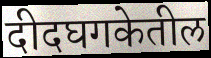
दीदघगकेतील